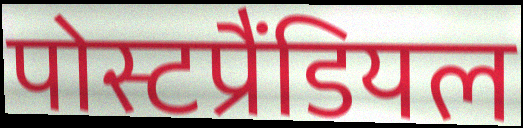
पोस्टप्रैंडियल